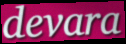
devara